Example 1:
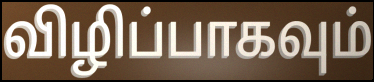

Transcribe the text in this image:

விழிப்பாகவும்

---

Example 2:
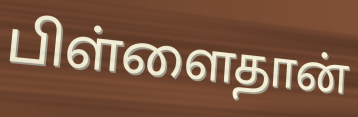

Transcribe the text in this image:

பிள்ளைதான்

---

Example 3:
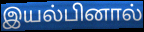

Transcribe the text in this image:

இயல்பினால்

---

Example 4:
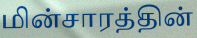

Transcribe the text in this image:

மின்சாரத்தின்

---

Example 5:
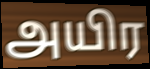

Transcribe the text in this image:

அயிர